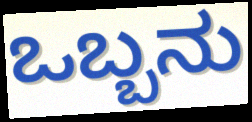
ಒಬ್ಬನು